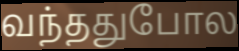
வந்ததுபோல